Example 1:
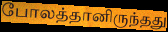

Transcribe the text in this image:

போலத்தானிருந்தது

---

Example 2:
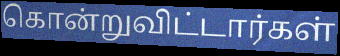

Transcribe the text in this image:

கொன்றுவிட்டார்கள்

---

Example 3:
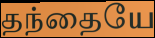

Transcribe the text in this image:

தந்தையே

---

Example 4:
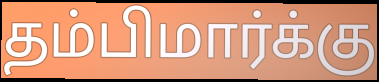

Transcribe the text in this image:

தம்பிமார்க்கு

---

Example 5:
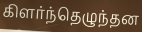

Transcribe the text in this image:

கிளர்ந்தெழுந்தன